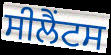
ਸੀਲੈਂਟਸ